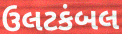
ઉલટકંબલ